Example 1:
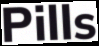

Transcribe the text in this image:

Pills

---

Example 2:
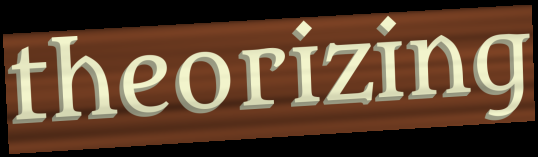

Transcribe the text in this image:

theorizing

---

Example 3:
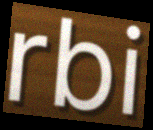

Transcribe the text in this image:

rbi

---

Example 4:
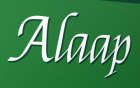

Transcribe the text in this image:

Alaap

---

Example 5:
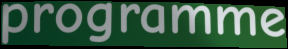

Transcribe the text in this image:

programme